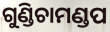
ଗୁଣ୍ଡିଚାମଣ୍ଡପ